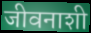
जीवनाशी